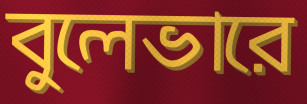
বুলেভারে